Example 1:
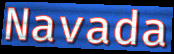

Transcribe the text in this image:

Navada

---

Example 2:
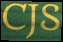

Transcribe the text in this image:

CJS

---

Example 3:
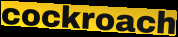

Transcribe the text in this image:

cockroach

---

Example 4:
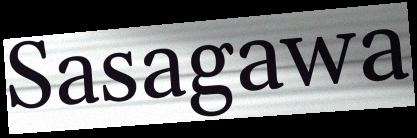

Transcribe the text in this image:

Sasagawa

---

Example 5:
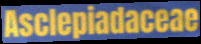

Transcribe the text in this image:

Asclepiadaceae